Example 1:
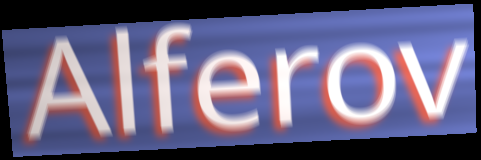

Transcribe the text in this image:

Alferov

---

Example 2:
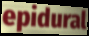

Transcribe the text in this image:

epidural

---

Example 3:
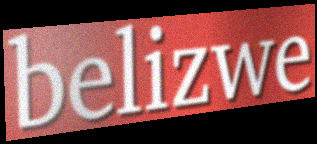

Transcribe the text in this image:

belizwe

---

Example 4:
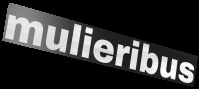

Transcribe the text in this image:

mulieribus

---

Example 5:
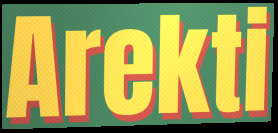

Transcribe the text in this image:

Arekti